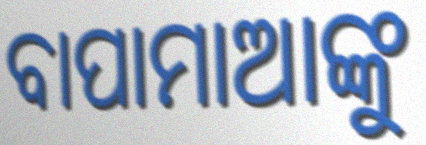
ବାପାମାଆଙ୍କୁ